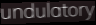
undulatory